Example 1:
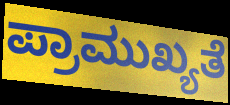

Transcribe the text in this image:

ಪ್ರಾಮುಖ್ಯತೆ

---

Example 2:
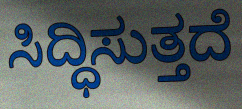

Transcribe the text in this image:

ಸಿದ್ಧಿಸುತ್ತದೆ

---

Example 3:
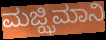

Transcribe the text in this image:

ಮಜ್ಝಿಮಾನಿ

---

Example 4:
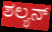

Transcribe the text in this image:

ಶಲ್ಯನ್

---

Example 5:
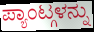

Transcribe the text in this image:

ಪ್ಯಾಂಟ್ಗಳನ್ನು